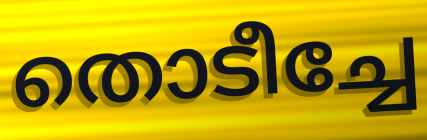
തൊടീച്ചേ